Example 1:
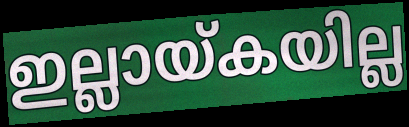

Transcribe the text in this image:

ഇല്ലായ്കയില്ല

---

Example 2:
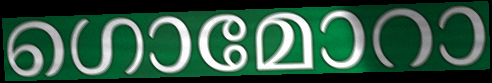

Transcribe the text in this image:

ഗൊമോറാ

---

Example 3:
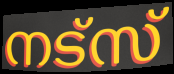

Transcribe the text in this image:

നട്സ്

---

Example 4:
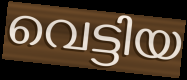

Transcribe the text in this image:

വെട്ടിയ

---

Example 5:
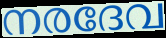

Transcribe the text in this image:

നരദേവ